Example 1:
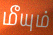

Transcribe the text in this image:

மீயும்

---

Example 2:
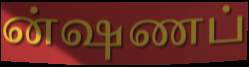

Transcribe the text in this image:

ன்ஷணப்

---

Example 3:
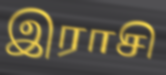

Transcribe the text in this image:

இராசி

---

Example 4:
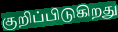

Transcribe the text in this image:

குறிப்பிடுகிறது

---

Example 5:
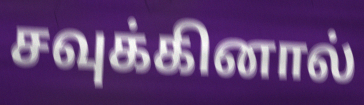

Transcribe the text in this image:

சவுக்கினால்